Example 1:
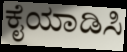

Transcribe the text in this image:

ಕೈಯಾಡಿಸಿ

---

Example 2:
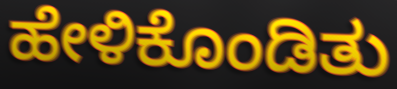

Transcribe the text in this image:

ಹೇಳಿಕೊಂಡಿತು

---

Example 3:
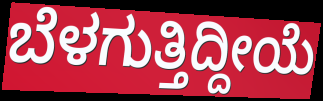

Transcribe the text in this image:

ಬೆಳಗುತ್ತಿದ್ದೀಯೆ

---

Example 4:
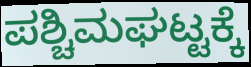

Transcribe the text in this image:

ಪಶ್ಚಿಮಘಟ್ಟಕ್ಕೆ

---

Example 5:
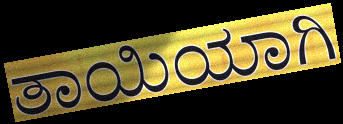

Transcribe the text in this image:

ತಾಯಿಯಾಗಿ